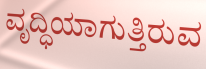
ವೃದ್ಧಿಯಾಗುತ್ತಿರುವ